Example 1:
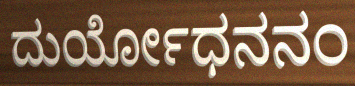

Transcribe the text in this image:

ದುರ್ಯೋಧನನಂ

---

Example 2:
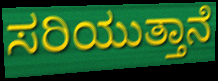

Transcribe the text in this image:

ಸರಿಯುತ್ತಾನೆ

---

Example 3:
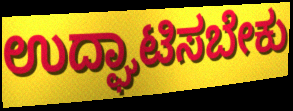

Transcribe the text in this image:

ಉದ್ಘಾಟಿಸಬೇಕು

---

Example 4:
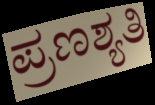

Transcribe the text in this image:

ಪ್ರಣಶ್ಯತಿ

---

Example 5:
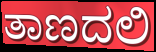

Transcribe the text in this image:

ತಾಣದಲಿ